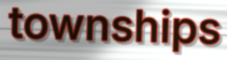
townships